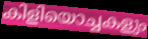
കിളിയൊച്ചകളും